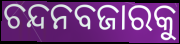
ଚନ୍ଦନବଜାରକୁ